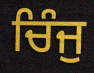
ਚਿੰਜੁ